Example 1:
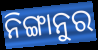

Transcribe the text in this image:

ନିଙ୍ଗାନୁର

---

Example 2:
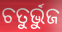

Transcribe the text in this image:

ଚତୁର୍ଭୁଜ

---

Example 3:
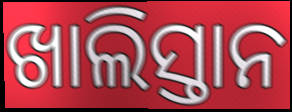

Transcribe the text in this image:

ଖାଲିସ୍ତାନ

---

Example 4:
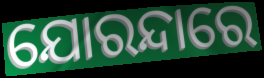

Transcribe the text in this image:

ଯୋରନ୍ଦାରେ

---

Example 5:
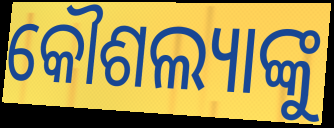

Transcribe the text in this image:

କୌଶଲ୍ୟାଙ୍କୁ